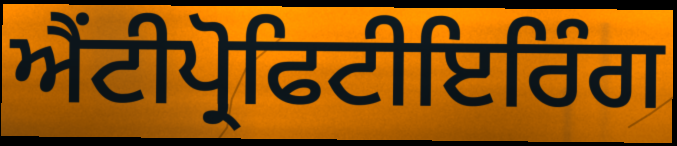
ਐਂਟੀਪ੍ਰੋਫਿਟੀਇਰਿੰਗ